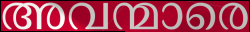
അവന്മാരെ